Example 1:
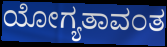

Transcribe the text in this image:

ಯೋಗ್ಯತಾವಂತ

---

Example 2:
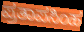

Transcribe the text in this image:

ಪ್ರತಾಪಸಿಂಹ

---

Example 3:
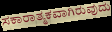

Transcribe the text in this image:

ಸಕಾರಾತ್ಮಕವಾಗಿರುವುದು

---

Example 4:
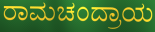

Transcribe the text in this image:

ರಾಮಚಂದ್ರಾಯ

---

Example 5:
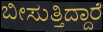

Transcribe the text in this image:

ಬೀಸುತ್ತಿದ್ದಾರೆ